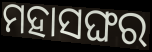
ମହାସଙ୍ଘର